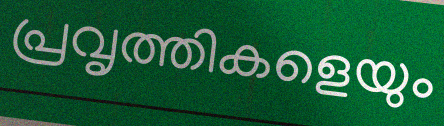
പ്രവൃത്തികളെയും